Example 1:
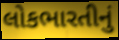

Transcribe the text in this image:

લોકભારતીનું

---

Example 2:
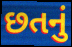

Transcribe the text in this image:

છતનું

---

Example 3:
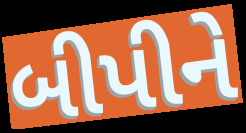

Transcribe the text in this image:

બીપીને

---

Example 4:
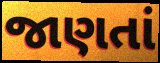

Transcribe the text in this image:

જાણતાં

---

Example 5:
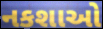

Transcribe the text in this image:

નકશાઓ